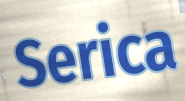
Serica